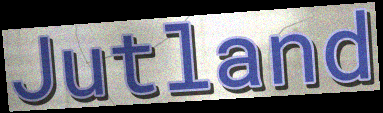
Jutland